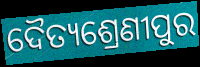
ଦୈତ୍ୟଶ୍ରେଣୀପୁର